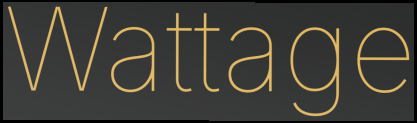
Wattage